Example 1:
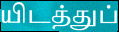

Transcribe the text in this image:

யிடத்துப்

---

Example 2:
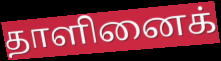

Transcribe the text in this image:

தாளினைக்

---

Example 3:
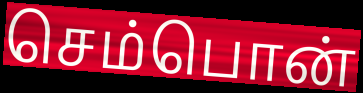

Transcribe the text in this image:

செம்பொன்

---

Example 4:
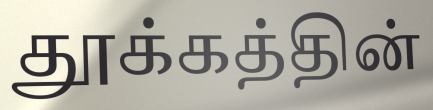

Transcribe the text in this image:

தூக்கத்தின்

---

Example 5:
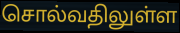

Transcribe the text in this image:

சொல்வதிலுள்ள